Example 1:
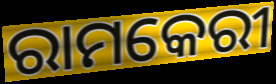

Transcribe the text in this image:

ରାମକେରୀ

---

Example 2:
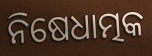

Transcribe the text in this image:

ନିଷେଧାତ୍ମକ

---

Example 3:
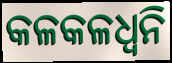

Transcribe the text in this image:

କଳକଳଧ୍ଵନି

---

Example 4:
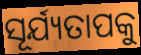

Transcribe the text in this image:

ସୂର୍ଯ୍ୟତାପକୁ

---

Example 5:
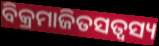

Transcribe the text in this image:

ବିକ୍ରମାଜିତସତ୍ଵସ୍ୟ